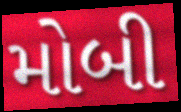
મોબી